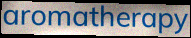
aromatherapy